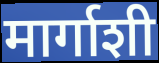
मार्गाशी